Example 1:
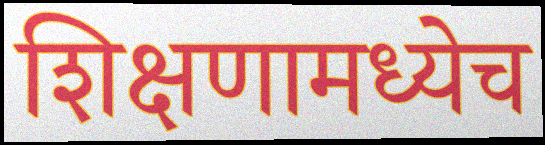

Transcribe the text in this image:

शिक्षणामध्येच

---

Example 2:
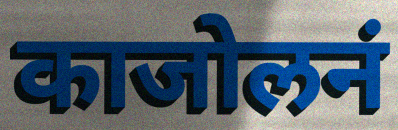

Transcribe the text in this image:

काजोलनं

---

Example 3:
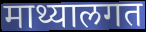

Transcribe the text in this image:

माथ्यालगत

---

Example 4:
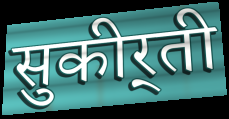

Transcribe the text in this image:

सुकीर्ती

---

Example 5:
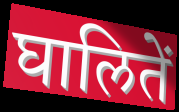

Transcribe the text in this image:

घालितें